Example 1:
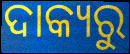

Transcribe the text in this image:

ଦାକ୍ୟରୁ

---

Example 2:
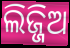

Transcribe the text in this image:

ଲିଜ୍ଜିଅ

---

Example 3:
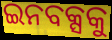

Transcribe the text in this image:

ଇନବକ୍ସକୁ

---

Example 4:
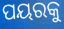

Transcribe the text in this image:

ପୟରକୁ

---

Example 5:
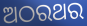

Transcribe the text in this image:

ଅଠରଥର